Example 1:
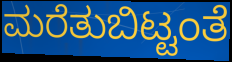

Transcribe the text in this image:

ಮರೆತುಬಿಟ್ಟಂತೆ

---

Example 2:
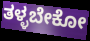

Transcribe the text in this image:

ತಳ್ಳಬೇಕೋ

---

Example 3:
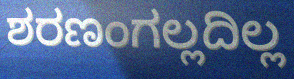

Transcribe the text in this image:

ಶರಣಂಗಲ್ಲದಿಲ್ಲ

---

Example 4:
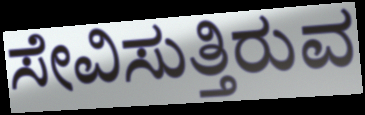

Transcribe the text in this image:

ಸೇವಿಸುತ್ತಿರುವ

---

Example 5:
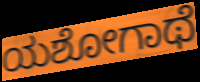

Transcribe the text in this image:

ಯಶೋಗಾಥೆ